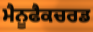
ਮੈਨੂਫੈਕਚਰਡ